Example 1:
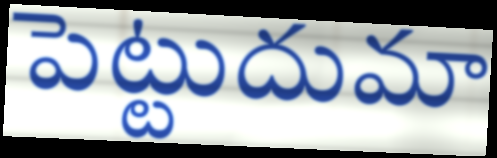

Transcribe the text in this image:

పెట్టుదుమా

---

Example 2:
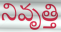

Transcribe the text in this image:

నివృత్తి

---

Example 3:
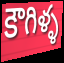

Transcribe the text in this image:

కౌగిళ్ళ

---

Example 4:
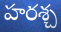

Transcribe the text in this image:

హరశ్చ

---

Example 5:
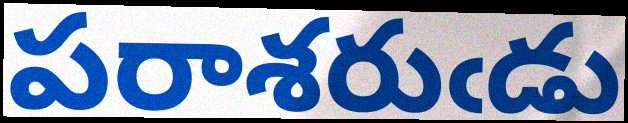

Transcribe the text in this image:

పరాశరుఁడు